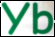
Yb